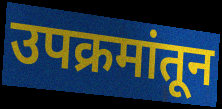
उपक्रमांतून